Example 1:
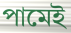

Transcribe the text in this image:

পামেই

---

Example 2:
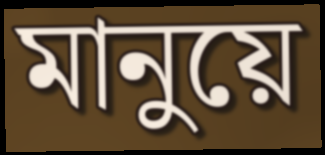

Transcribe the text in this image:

মানুয়ে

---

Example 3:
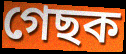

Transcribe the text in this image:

গেছক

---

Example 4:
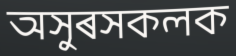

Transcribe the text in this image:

অসুৰসকলক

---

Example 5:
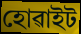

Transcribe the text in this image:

হোৱাইট